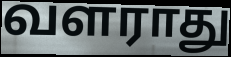
வளராது